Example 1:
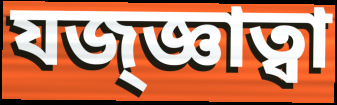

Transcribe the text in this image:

যজ্জ্ঞাত্বা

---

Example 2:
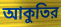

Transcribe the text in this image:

আকুতির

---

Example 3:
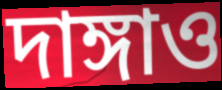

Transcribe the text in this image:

দাঙ্গাও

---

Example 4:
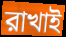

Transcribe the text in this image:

রাখাই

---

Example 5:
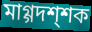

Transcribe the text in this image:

মাগ্গদশ্শক